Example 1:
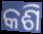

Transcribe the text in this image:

କଶି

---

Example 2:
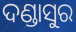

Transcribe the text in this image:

ଦଣ୍ଡାସୁର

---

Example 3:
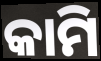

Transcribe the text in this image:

କାମି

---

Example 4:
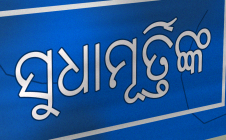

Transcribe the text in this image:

ସୁଧାମୂର୍ତ୍ତିଙ୍କ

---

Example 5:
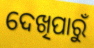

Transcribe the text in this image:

ଦେଖିପାରୁଁ